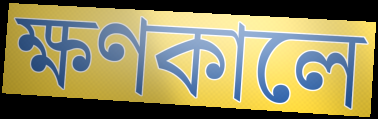
ক্ষণকালে